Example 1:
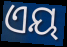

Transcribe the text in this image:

ଏୟ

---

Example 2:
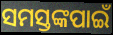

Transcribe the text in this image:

ସମସ୍ତଙ୍କପାଇଁ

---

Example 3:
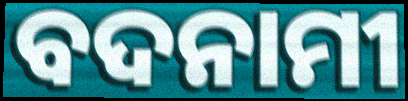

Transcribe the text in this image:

ବଦନାମୀ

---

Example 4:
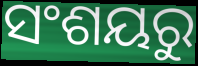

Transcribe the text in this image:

ସଂଶୟରୁ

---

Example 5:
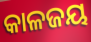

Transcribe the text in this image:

କାଳଜୟ